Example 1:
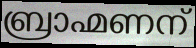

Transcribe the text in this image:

ബ്രാഹ്മണന്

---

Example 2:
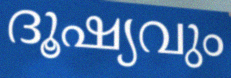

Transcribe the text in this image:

ദൂഷ്യവും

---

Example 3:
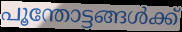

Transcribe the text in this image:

പൂന്തോട്ടങ്ങൾക്ക്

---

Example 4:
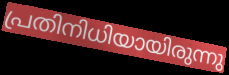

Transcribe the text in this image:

പ്രതിനിധിയായിരുന്നു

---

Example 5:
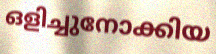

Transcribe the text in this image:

ഒളിച്ചുനോക്കിയ